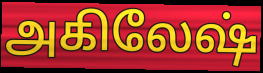
அகிலேஷ்